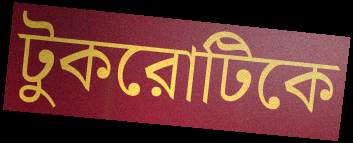
টুকরোটিকে